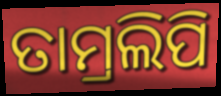
ତାମ୍ରଲିପି